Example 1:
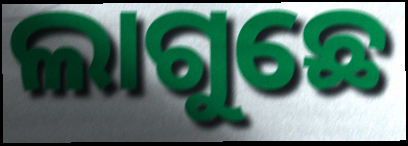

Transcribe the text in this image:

ଲାଗୁଛେ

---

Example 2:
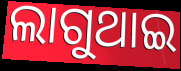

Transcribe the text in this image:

ଲାଗୁଥାଇ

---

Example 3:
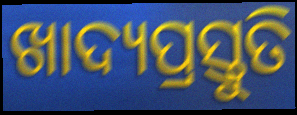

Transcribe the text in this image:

ଖାଦ୍ୟପ୍ରସ୍ତୁତି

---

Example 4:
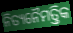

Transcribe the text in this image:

ନିତ୍ୟନୈମତ୍ତିକ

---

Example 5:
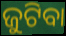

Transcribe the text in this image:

ଜୁଟିବା